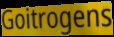
Goitrogens